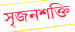
সৃজনশক্তি